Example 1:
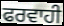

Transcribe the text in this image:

ਫਰਵਾਹੀ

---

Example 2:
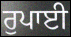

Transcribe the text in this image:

ਰੁਪਾਈ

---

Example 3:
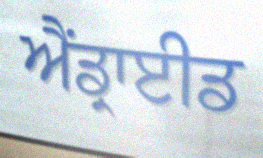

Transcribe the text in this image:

ਐਂਡ੍ਰਾਈਡ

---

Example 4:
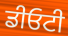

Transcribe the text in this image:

ਡੀਓਟੀ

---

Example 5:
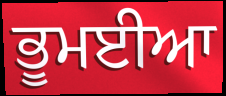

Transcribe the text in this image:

ਭੂਮਈਆ